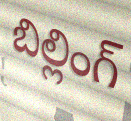
బిల్లింగ్